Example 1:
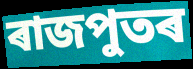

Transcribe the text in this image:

ৰাজপুতৰ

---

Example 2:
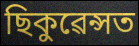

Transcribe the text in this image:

ছিকুৱেন্সত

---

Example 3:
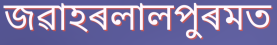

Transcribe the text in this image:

জৱাহৰলালপুৰমত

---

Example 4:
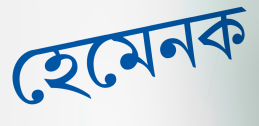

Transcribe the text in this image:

হেমেনক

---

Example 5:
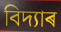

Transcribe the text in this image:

বিদ্যাৰ